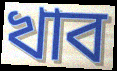
খাব